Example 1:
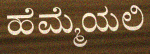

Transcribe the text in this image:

ಹೆಮ್ಮೆಯಲಿ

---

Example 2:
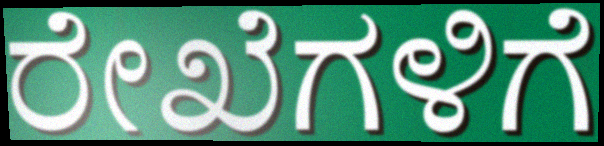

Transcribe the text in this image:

ರೇಖೆಗಳಿಗೆ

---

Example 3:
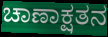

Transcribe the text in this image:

ಚಾಣಾಕ್ಷತನ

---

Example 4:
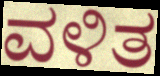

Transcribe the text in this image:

ವಳಿತ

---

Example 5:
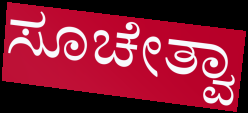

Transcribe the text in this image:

ಸೂಚೇತ್ವಾ